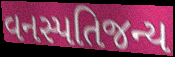
વનસ્પતિજન્ય